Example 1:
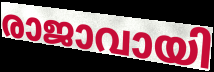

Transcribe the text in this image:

രാജാവായി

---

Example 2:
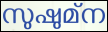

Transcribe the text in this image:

സുഷുമ്ന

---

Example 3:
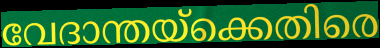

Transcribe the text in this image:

വേദാന്തയ്ക്കെതിരെ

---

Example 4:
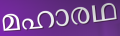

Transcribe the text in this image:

മഹാരഥ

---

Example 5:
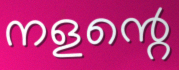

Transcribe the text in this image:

നളന്റെ